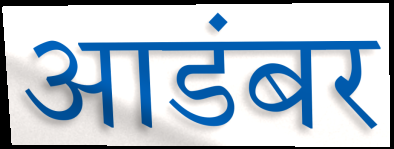
आडंबर